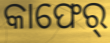
କାଫେର୍